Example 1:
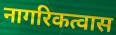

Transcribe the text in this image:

नागरिकत्वास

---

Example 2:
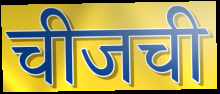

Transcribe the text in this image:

चीजची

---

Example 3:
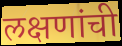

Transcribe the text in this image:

लक्षणांची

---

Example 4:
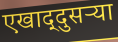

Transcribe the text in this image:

एखाद्‌दुसऱ्या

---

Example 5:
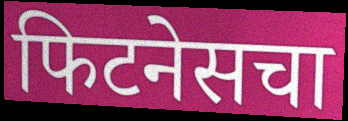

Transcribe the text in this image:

फिटनेसचा